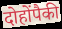
दोहोंपैकी